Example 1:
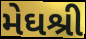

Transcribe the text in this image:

મેઘશ્રી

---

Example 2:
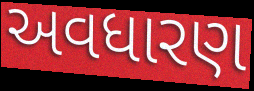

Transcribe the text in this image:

અવધારણ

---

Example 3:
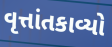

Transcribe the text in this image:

વૃત્તાંતકાવ્યો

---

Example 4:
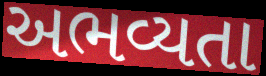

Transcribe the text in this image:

અભવ્યતા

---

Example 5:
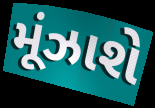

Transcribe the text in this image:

મૂંઝાશે